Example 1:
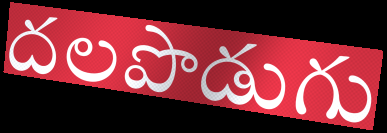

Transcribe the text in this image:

దలపొడుగు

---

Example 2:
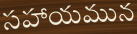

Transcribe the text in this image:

సహాయమున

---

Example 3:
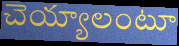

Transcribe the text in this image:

చెయ్యాలంటూ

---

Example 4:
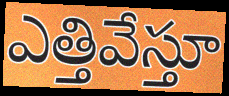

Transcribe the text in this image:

ఎత్తివేస్తూ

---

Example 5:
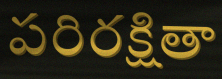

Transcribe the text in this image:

పరిరక్షితా